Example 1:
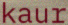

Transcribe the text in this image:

kaur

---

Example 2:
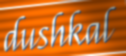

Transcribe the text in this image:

dushkal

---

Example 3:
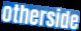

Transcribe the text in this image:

otherside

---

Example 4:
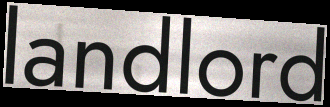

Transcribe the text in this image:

landlord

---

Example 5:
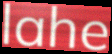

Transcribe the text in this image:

lahe